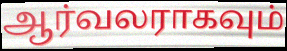
ஆர்வலராகவும்